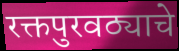
रक्तपुरवठ्याचे